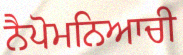
ਨੈਪੋਮਨਿਆਚੀ